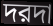
দরদা